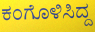
ಕಂಗೊಳಿಸಿದ್ದ